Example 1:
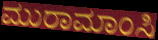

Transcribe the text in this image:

ಮುರಾಮಾಂಸಿ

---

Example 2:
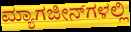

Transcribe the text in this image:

ಮ್ಯಾಗಜೀನ್‌ಗಳಲ್ಲಿ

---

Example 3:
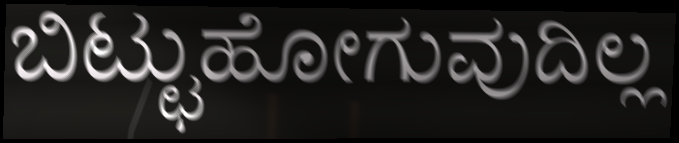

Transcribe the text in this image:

ಬಿಟ್ಟುಹೋಗುವುದಿಲ್ಲ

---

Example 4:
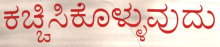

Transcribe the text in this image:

ಕಚ್ಚಿಸಿಕೊಳ್ಳುವುದು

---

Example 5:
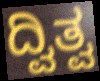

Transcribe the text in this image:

ದ್ವಿತ್ವ